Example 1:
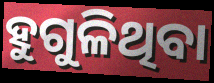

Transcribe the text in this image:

ହୁଗୁଳିଥିବା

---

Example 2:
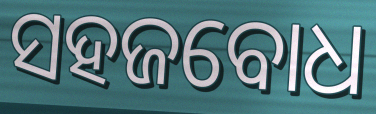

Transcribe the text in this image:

ସହଜବୋଧ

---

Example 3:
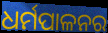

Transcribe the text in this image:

ଧର୍ମପାଳନର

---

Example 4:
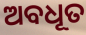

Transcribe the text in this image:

ଅବଧୂତ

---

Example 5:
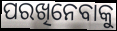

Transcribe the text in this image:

ପରଖିନେବାକୁ